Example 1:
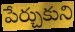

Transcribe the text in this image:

పేర్చుకుని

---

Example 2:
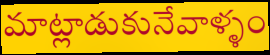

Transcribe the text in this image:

మాట్లాడుకునేవాళ్ళం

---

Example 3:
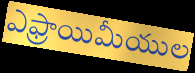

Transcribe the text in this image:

ఎఫ్రాయిమీయుల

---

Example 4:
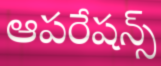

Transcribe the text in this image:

ఆపరేషన్స్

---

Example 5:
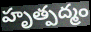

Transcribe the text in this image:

హృత్పద్మం